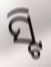
ସ୍ଟି